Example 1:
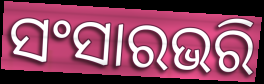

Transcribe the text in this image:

ସଂସାରଭରି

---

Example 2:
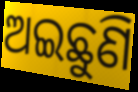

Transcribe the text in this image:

ଅଇଛୁଣି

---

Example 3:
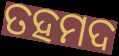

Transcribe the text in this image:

ତହମଦ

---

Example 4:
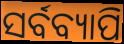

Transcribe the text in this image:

ସର୍ବବ୍ୟାପି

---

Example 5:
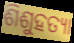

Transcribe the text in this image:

ଶିଶୁହତ୍ୟା